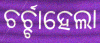
ଚର୍ଚ୍ଚାହେଲା